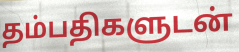
தம்பதிகளுடன்